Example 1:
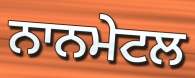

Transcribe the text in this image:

ਨਾਨਮੇਟਲ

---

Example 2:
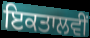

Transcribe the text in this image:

ਇਕਤਾਲਵੀਂ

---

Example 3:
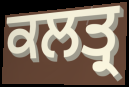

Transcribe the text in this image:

ਕਲਤ੍ਰ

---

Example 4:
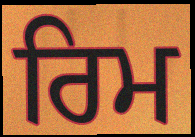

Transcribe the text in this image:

ਰਿਮ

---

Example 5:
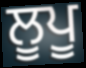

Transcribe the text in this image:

ਲੂਪੂ